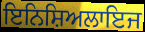
ਇਨਿਸ਼ਿਅਲਾਇਜ